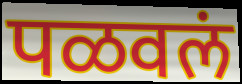
पळवलं